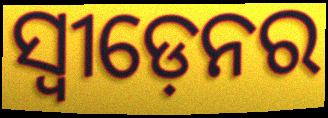
ସ୍ଵୀଡ଼େନର